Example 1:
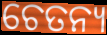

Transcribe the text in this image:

ଚେତନ୍ୟ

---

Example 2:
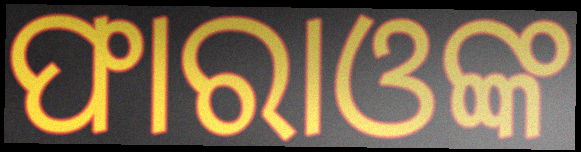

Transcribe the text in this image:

ଫାରାଓଙ୍କ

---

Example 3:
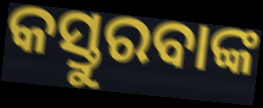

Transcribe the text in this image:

କସ୍ତୁରବାଙ୍କ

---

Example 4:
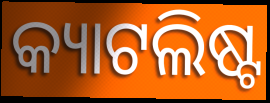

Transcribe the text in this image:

କ୍ୟାଟଲିଷ୍ଟ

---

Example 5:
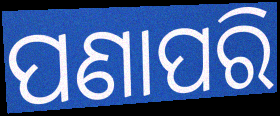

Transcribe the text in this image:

ପଣାପରି